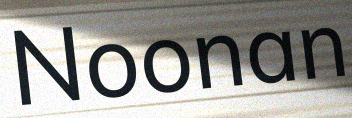
Noonan